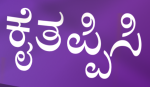
ಕೈತಪ್ಪಿಸಿ